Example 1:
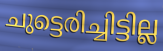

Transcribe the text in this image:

ചുട്ടെരിച്ചിട്ടില്ല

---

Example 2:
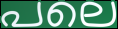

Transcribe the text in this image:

പലെ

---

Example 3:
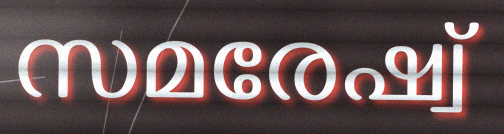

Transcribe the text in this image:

സമരേഷ്വ്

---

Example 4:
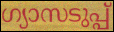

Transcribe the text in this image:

ഗ്യാസടുപ്പ്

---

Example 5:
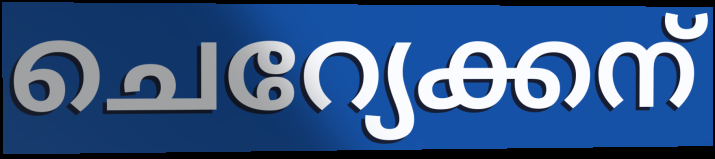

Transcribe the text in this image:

ചെറ്യേക്കന്